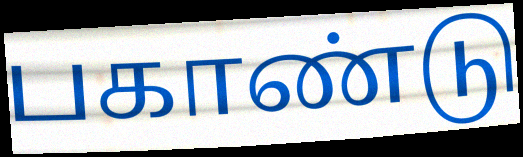
பகாண்டு